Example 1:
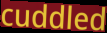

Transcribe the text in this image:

cuddled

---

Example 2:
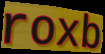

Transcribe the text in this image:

roxb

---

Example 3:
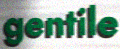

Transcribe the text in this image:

gentile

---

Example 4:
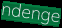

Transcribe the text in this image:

ndenge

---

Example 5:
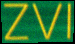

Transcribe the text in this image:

ZVI